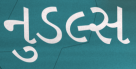
નુડલ્સ